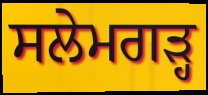
ਸਲੇਮਗੜ੍ਹ